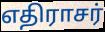
எதிராசர்